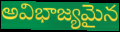
అవిభాజ్యమైన